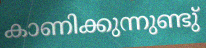
കാണിക്കുന്നുണ്ടു്